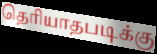
தெரியாதபடிக்கு